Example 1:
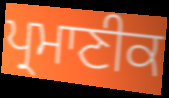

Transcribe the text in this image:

ਪ੍ਰਮਾਣੀਕ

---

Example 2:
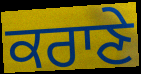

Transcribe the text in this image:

ਕਰਾਣੇ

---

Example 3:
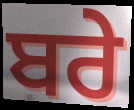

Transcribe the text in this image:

ਬਰੇ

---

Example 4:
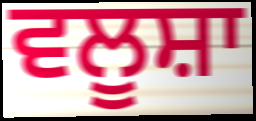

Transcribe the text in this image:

ਵਲੂਸ਼ਾ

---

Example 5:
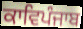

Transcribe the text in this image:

ਕਾਵਿਪੰਜਾਬ